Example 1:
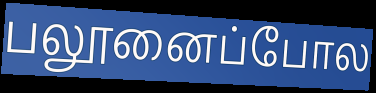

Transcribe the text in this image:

பலூனைப்போல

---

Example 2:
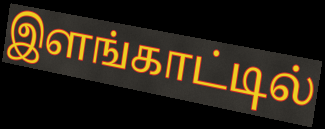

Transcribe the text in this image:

இளங்காட்டில்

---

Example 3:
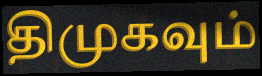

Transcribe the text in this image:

திமுகவும்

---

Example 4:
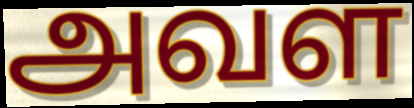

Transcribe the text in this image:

அவள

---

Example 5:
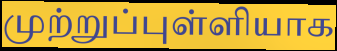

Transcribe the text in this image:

முற்றுப்புள்ளியாக